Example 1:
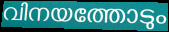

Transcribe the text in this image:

വിനയത്തോടും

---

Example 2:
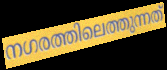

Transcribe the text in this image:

നഗരത്തിലെത്തുന്നത്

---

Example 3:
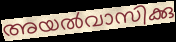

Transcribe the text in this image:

അയൽവാസിക്കു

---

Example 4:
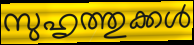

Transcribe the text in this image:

സുഹൃത്തുക്കൾ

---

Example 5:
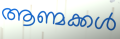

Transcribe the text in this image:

ആണ്മക്കൾ